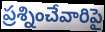
ప్రశ్నించేవారిపై